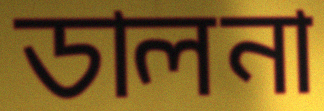
ডালনা